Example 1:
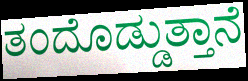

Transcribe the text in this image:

ತಂದೊಡ್ಡುತ್ತಾನೆ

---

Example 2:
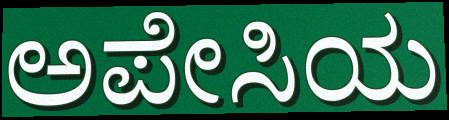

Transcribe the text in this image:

ಅಪೇಸಿಯ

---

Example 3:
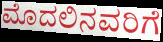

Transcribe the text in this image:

ಮೊದಲಿನವರಿಗೆ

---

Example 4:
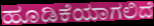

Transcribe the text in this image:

ಹೂಡಿಕೆಯಾಗಲಿದೆ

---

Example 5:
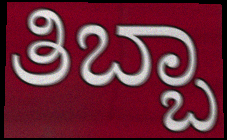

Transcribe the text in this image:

ತಿಬ್ಬಾ